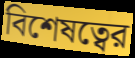
বিশেষত্বের